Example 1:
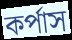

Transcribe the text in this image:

কর্পাস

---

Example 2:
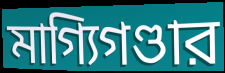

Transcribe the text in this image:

মাগ্যিগণ্ডার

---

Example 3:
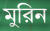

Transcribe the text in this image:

মুরিন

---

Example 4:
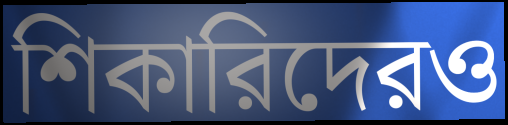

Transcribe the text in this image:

শিকারিদেরও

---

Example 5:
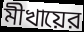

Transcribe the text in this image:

মীখায়ের